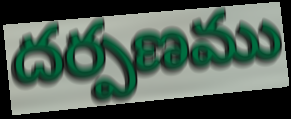
దర్పణము